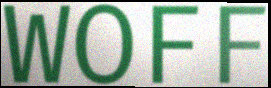
WOFF